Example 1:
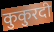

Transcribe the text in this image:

कुकुरदी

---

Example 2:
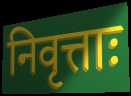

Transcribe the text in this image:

निवृत्ताः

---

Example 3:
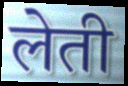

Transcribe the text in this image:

लेती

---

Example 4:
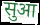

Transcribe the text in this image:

सुआ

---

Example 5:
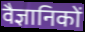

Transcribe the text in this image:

वैज्ञानिकों